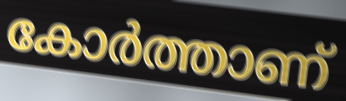
കോർത്താണ്